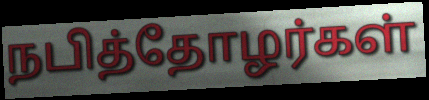
நபித்தோழர்கள்